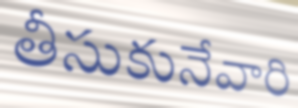
తీసుకునేవారి